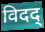
विदद्